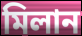
মিলান